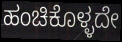
ಹಂಚಿಕೊಳ್ಳದೇ